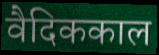
वैदिककाल